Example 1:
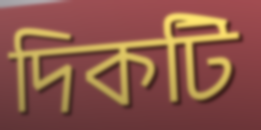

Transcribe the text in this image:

দিকটি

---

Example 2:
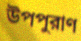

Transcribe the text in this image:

উপপুরাণ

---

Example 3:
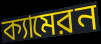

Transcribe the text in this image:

ক্যামেরন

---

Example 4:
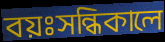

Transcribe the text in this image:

বয়ঃসন্ধিকালে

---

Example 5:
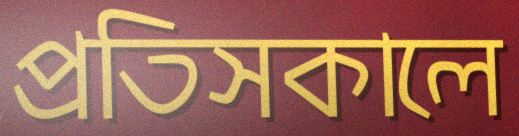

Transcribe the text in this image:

প্রতিসকালে